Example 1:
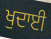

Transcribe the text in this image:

ਖੁਦਾਈ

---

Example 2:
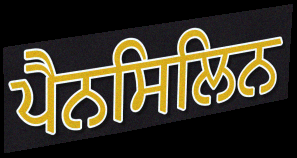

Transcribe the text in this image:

ਪੈਨਸਿਲਿਨ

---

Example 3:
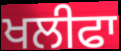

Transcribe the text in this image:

ਖਲੀਫਾ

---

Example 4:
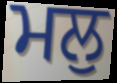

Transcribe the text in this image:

ਮਲੁ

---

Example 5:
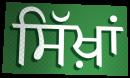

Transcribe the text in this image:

ਸਿੱਖ਼ਾਂ